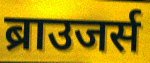
ब्राउजर्स